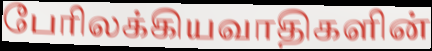
பேரிலக்கியவாதிகளின்